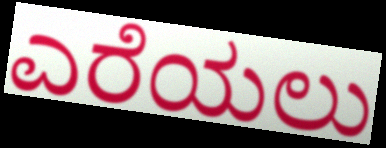
ಎರೆಯಲು